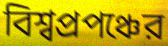
বিশ্বপ্রপঞ্চের